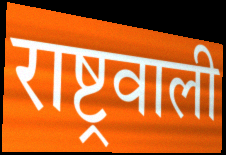
राष्ट्रवाली